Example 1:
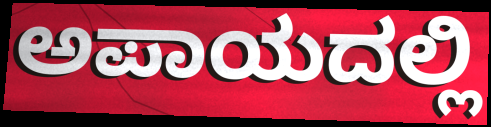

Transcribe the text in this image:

ಅಪಾಯದಲ್ಲಿ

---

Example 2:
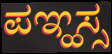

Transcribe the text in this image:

ಪಞ್ಹಸ್ಸ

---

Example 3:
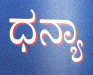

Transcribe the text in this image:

ಧನ್ಯಾ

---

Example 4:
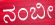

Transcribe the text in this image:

ನಂಬೀ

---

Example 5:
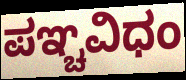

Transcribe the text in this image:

ಪಞ್ಚವಿಧಂ